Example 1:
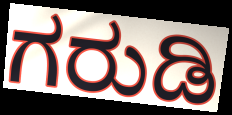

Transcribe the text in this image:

ಗರುಡಿ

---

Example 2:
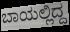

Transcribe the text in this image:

ಬಾಯಲ್ಲಿದ್ದ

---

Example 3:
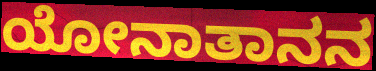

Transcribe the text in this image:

ಯೋನಾತಾನನ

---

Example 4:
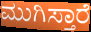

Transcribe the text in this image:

ಮುಗಿಸ್ತಾರೆ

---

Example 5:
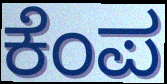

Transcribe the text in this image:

ಕೆಂಪ